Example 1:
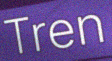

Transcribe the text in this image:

Tren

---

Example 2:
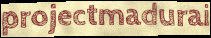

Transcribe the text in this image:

projectmadurai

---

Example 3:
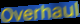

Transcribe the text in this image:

Overhaul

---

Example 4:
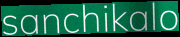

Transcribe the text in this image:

sanchikalo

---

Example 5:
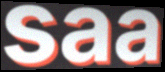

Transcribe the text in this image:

saa